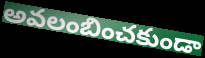
అవలంబించకుండా